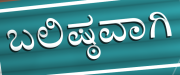
ಬಲಿಷ್ಠವಾಗಿ